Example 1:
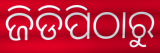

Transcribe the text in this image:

ଜିଡିପିଠାରୁ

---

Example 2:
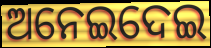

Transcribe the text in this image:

ଅନେଇଦେଇ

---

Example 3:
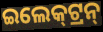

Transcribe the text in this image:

ଇଲେକ୍‌ଟ୍ରନ୍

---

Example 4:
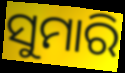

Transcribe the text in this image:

ସୁମାରି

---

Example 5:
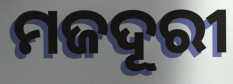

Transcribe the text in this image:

ମଜଦୂରୀ